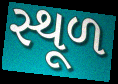
સ્થૂળ